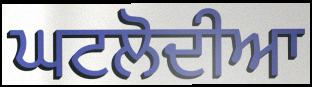
ਘਟਲੋਦੀਆ